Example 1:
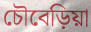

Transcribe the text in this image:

চৌবেড়িয়া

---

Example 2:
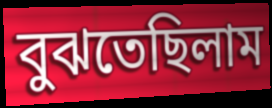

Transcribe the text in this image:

বুঝতেছিলাম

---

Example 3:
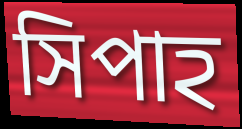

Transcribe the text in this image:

সিপাহ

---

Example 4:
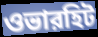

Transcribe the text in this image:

ওভারহিট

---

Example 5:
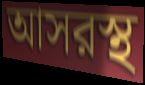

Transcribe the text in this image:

আসরস্থ